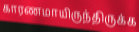
காரணமாயிருந்திருக்க